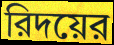
রিদয়ের